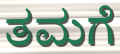
ತಮಗೆ